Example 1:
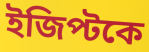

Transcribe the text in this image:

ইজিপ্টকে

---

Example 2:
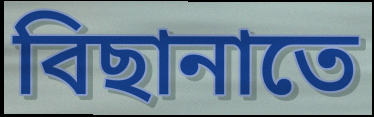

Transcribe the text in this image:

বিছানাতে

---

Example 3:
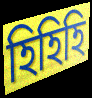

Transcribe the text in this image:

হিহিহি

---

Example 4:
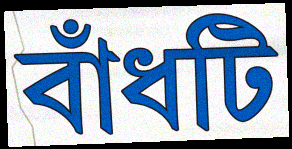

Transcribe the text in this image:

বাঁধটি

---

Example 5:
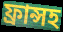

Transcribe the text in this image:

ফ্রান্সহ